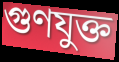
গুণযুক্ত